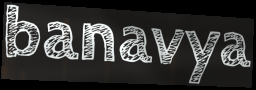
banavya